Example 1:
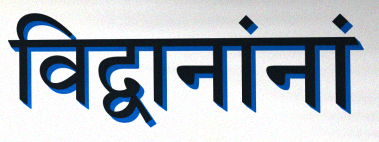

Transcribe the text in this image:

विद्वानांनां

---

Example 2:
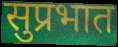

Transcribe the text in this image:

सुप्रभात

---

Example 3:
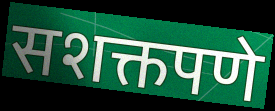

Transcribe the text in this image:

सशक्तपणे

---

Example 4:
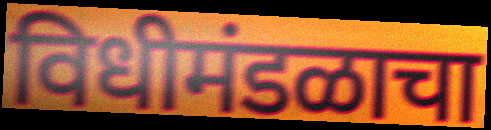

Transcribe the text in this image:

विधीमंडळाचा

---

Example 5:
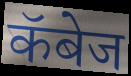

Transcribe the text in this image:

कॅबेज